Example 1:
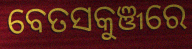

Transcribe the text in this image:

ବେତସକୁଞ୍ଜରେ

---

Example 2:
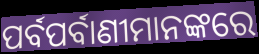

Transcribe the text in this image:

ପର୍ବପର୍ବାଣୀମାନଙ୍କରେ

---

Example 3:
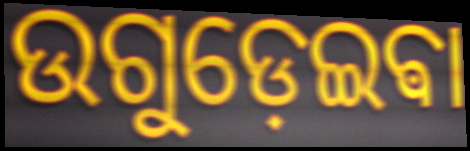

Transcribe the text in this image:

ଉଗୁଡ଼େଇଵା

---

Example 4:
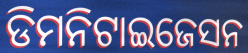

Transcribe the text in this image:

ଡିମନିଟାଇଜେସନ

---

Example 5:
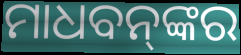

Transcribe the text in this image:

ମାଧବନ୍‌ଙ୍କର